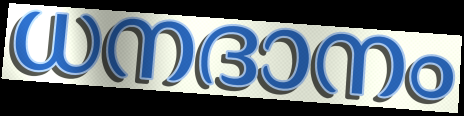
ധനദാനം